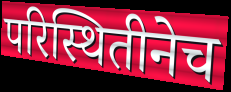
परिस्थितीनेच